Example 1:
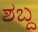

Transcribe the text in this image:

ಶಬ್ದ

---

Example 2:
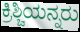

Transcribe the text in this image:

ಕ್ರಿಶ್ಚಿಯನ್ನರು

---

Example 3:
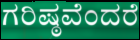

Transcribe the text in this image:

ಗರಿಷ್ಠವೆಂದರೆ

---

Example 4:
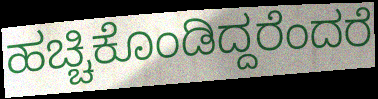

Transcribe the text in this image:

ಹಚ್ಚಿಕೊಂಡಿದ್ದರೆಂದರೆ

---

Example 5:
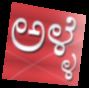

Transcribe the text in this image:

ಅಳ್ಳೆ